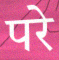
परे